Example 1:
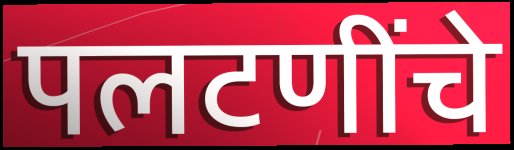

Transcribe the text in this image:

पलटणींचे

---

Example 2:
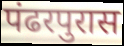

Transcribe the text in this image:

पंढरपुरास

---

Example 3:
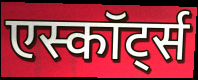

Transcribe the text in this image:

एस्कॉर्ट्स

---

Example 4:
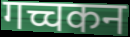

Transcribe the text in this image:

गच्चकन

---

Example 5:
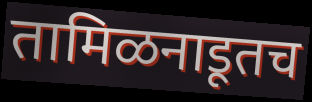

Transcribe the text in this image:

तामिळनाडूतच